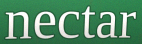
nectar